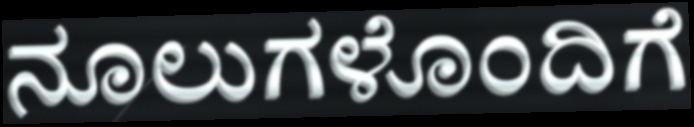
ನೂಲುಗಳೊಂದಿಗೆ